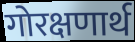
गोरक्षणार्थ